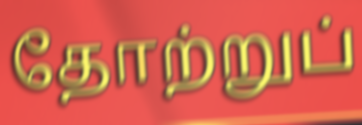
தோற்றுப்